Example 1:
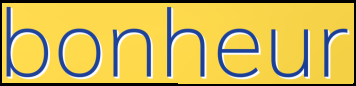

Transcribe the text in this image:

bonheur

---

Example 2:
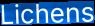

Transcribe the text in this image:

Lichens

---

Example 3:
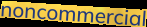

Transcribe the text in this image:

noncommercial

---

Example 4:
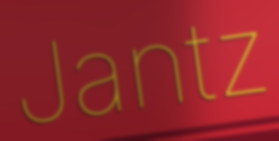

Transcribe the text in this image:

Jantz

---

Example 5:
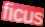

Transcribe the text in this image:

ficus